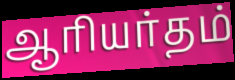
ஆரியர்தம்